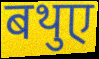
बथुए